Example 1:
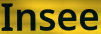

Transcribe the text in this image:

Insee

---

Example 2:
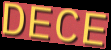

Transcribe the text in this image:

DECE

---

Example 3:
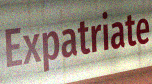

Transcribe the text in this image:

Expatriate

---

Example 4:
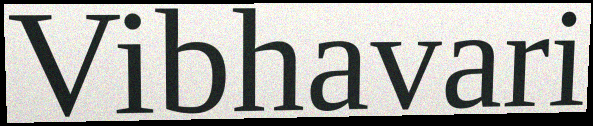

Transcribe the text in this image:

Vibhavari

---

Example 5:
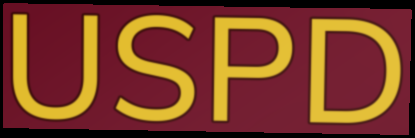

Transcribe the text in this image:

USPD